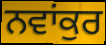
ਨਵਾਂਕੁਰ